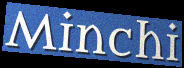
Minchi